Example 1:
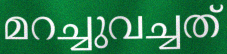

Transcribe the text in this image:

മറച്ചുവച്ചത്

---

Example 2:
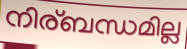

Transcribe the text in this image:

നിര്ബന്ധമില്ല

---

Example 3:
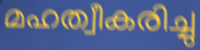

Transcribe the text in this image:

മഹത്വീകരിച്ചു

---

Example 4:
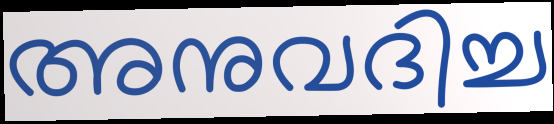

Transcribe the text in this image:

അനുവദിച്ച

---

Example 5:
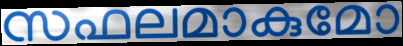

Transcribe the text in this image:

സഫലമാകുമോ